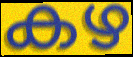
കഴ